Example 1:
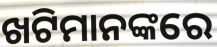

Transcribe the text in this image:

ଖଟିମାନଙ୍କରେ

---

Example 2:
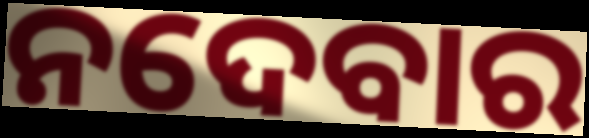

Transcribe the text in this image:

ନଦେବାର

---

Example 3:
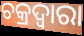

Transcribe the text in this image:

ଚକ୍ରଦ୍ୱାରା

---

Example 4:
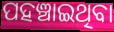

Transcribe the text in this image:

ପହଞ୍ଚାଇଥିବା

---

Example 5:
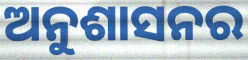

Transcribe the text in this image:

ଅନୁଶାସନର